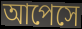
আপেসে